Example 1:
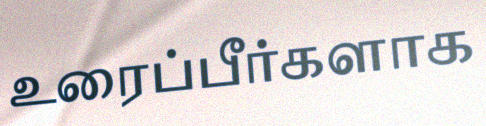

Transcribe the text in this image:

உரைப்பீர்களாக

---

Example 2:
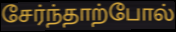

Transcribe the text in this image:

சேர்ந்தாற்போல்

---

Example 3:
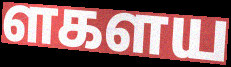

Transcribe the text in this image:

ளகளய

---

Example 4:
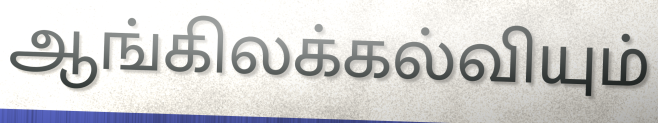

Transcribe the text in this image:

ஆங்கிலக்கல்வியும்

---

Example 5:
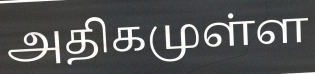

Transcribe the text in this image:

அதிகமுள்ள